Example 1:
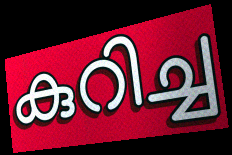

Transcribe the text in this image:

കുറിച്ച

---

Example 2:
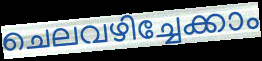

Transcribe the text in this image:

ചെലവഴിച്ചേക്കാം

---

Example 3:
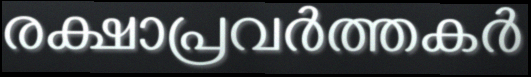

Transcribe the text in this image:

രക്ഷാപ്രവർത്തകർ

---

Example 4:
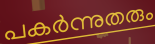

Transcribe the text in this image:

പകർന്നുതരും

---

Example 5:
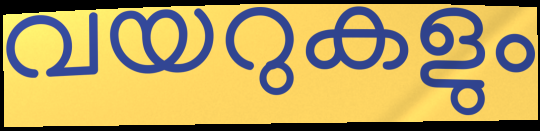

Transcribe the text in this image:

വയറുകളും